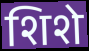
शिशे